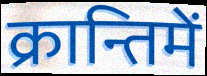
क्रान्तिमें